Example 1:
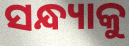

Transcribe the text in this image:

ସନ୍ଧ୍ୟାକୁ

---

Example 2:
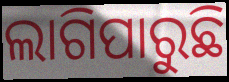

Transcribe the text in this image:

ଲାଗିପାରୁଛି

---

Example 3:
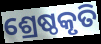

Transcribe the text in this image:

ଶ୍ରେଷ୍ଠକୃତି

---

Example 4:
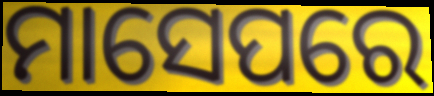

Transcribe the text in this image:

ମାସେପରେ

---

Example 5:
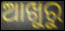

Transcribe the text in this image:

ଆଖୁରୁ